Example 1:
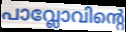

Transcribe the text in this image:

പാവ്ലോവിന്റെ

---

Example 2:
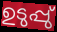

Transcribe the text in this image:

ഉടുപ്പു്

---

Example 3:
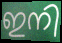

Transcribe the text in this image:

ഇനി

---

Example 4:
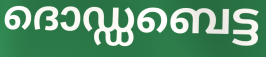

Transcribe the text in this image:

ദൊഡ്ഡബെട്ട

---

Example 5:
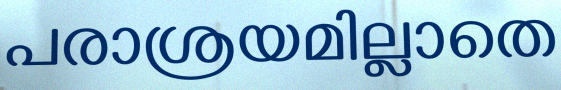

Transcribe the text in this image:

പരാശ്രയമില്ലാതെ